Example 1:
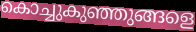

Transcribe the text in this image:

കൊച്ചുകുഞ്ഞുങ്ങളെ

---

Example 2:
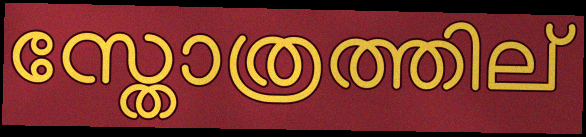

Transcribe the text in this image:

സ്തോത്രത്തില്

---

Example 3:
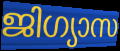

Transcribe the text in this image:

ജിഗ്യാസ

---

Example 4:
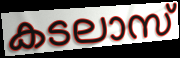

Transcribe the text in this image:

കടലാസ്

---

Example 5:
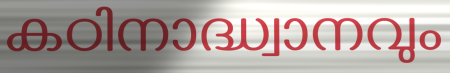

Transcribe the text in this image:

കഠിനാദ്ധ്വാനവും